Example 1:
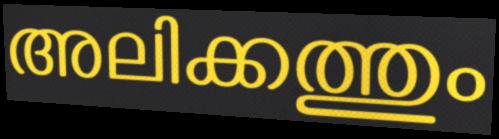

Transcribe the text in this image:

അലിക്കത്തും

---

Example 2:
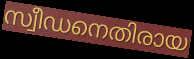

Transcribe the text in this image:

സ്വീഡനെതിരായ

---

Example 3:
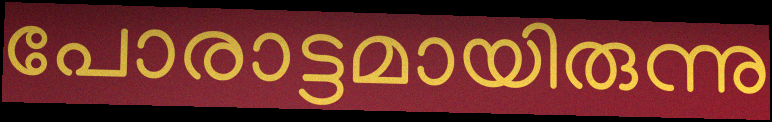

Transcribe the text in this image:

പോരാട്ടമായിരുന്നു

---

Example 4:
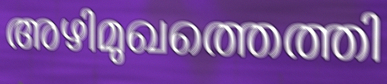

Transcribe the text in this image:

അഴിമുഖത്തെത്തി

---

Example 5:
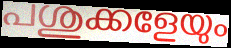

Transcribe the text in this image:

പശുക്കളേയും